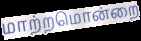
மாற்றமொன்றை